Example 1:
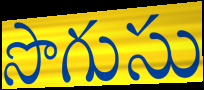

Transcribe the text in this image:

సొగుసు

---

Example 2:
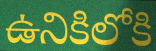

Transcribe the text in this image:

ఉనికిలోకి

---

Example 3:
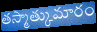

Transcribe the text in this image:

తస్మాత్కుమారం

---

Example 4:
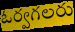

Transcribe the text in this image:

ఓర్వగలరు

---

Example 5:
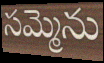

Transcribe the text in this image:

సమ్మెను